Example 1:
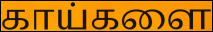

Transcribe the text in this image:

காய்களை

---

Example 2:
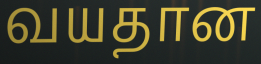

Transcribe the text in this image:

வயதான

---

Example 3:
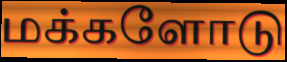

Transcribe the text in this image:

மக்களோடு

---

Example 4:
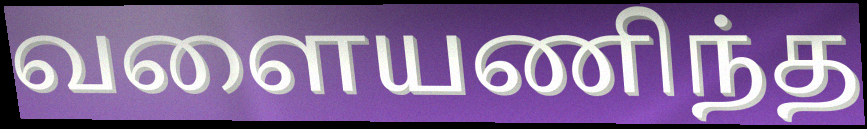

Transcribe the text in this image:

வளையணிந்த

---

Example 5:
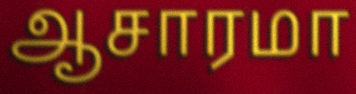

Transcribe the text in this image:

ஆசாரமா